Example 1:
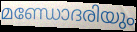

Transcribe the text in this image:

മണ്ഡോദരിയും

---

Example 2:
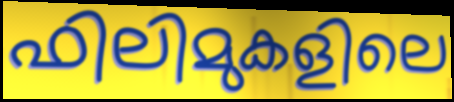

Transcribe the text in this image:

ഫിലിമുകളിലെ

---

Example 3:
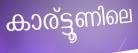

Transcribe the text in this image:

കാര്ട്ടൂണിലെ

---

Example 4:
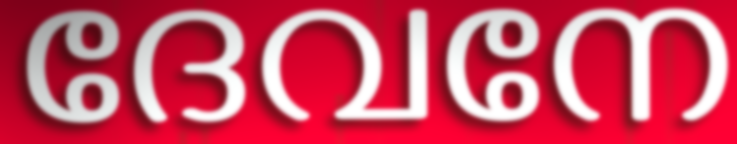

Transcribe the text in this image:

ദേവനേ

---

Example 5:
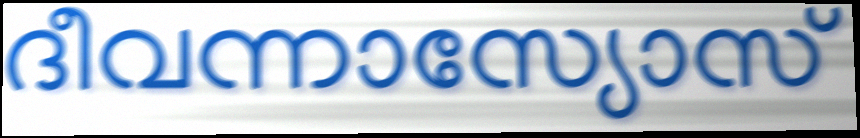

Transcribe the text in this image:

ദീവന്നാസ്യോസ്